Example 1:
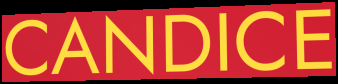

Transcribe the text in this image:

CANDICE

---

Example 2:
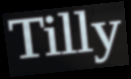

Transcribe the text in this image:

Tilly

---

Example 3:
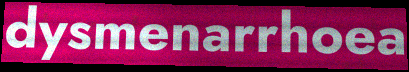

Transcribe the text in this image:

dysmenarrhoea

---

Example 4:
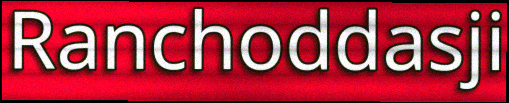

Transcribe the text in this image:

Ranchoddasji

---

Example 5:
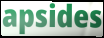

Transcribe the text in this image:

apsides